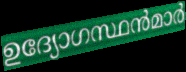
ഉദ്യോഗസ്ഥൻമാർ